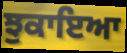
ਝੁਕਾਇਆ